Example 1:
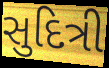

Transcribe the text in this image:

સુદિત્રી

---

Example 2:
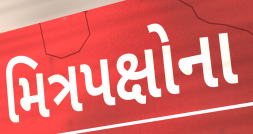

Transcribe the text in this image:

મિત્રપક્ષોના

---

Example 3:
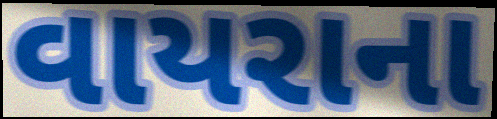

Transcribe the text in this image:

વાયરાના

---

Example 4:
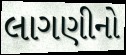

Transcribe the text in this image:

લાગણીનો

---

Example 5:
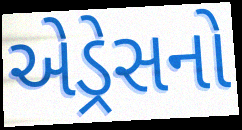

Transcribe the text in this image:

એડ્રેસનો